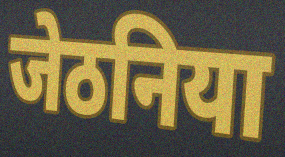
जेठनिया